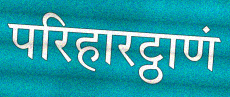
परिहारट्ठाणं